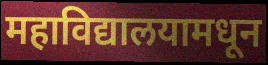
महाविद्यालयामधून